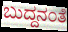
ಬುದ್ದನಂತೆ